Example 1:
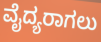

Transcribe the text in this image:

ವೈದ್ಯರಾಗಲು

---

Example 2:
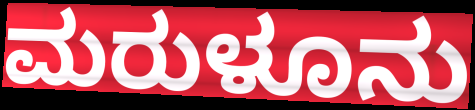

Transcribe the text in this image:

ಮರುಳೂನು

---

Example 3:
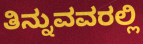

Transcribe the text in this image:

ತಿನ್ನುವವರಲ್ಲಿ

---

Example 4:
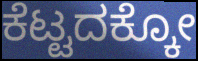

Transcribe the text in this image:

ಕೆಟ್ಟದಕ್ಕೋ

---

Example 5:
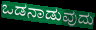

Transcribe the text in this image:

ಒಡನಾಡುವುದು